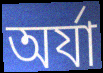
অর্যা